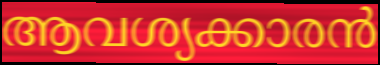
ആവശ്യക്കാരൻ